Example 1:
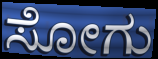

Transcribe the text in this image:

ಸೋಗು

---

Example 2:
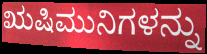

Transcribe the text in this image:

ಋಷಿಮುನಿಗಳನ್ನು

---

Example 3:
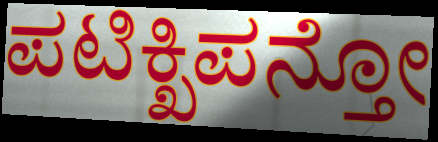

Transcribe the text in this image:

ಪಟಿಕ್ಖಿಪನ್ತೋ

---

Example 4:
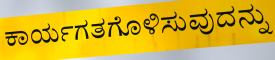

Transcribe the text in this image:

ಕಾರ್ಯಗತಗೊಳಿಸುವುದನ್ನು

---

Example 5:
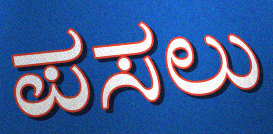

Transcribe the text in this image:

ಪಸಲು